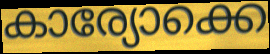
കാര്യോക്കെ